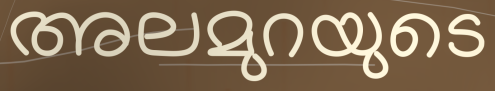
അലമുറയുടെ